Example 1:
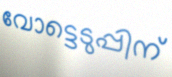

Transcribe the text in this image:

വോട്ടെടുപ്പിന്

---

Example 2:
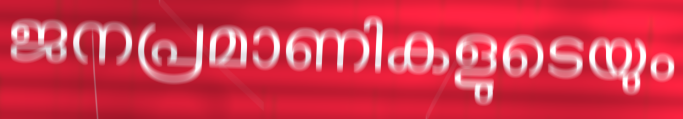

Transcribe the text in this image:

ജനപ്രമാണികളുടെയും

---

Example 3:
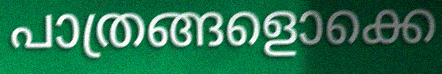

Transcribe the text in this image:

പാത്രങ്ങളൊക്കെ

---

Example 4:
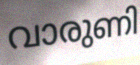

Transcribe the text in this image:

വാരുണി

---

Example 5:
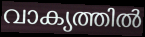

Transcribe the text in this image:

വാക്യത്തിൽ